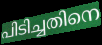
പിടിച്ചതിനെ